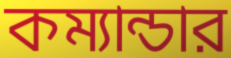
কম্যান্ডার